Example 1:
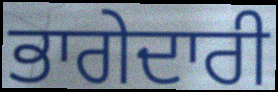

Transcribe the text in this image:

ਭਾਗੇਦਾਰੀ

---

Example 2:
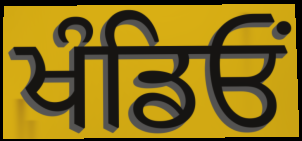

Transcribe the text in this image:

ਖੰਡਿਓਂ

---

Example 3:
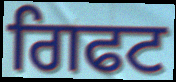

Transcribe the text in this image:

ਗਿਫਟ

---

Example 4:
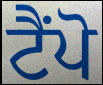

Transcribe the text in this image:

ਟੈਂਪੋ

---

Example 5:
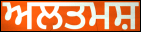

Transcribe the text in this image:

ਅਲਤਮਸ਼